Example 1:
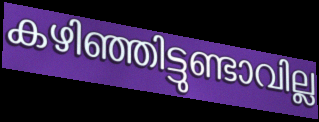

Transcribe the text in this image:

കഴിഞ്ഞിട്ടുണ്ടാവില്ല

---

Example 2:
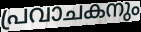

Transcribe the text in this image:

പ്രവാചകനും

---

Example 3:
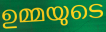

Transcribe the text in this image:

ഉമ്മയുടെ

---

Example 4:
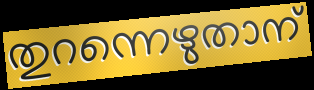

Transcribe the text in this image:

തുറന്നെഴുതാന്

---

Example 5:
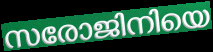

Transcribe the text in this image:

സരോജിനിയെ